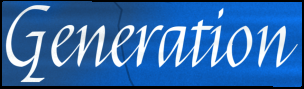
Generation